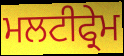
ਮਲਟੀਫ੍ਰੇਮ